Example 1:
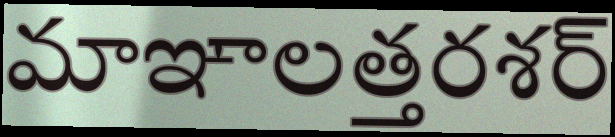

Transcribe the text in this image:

మాఞాలత్తరశర్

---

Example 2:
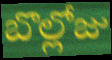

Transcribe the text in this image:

బొల్లోజు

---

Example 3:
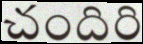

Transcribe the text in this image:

చందిరి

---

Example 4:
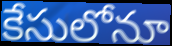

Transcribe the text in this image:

కేసులోనూ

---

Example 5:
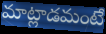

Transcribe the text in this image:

మాట్లాడమంటే